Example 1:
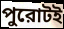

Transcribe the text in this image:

পুরোটই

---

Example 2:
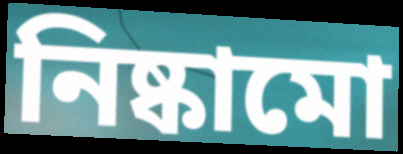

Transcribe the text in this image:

নিষ্কামো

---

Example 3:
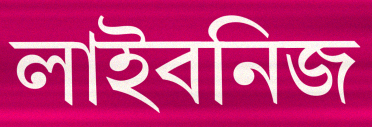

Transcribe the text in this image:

লাইবনিজ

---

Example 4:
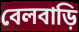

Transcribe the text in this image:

বেলবাড়ি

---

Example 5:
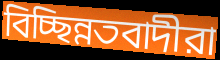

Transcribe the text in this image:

বিচ্ছিন্নতবাদীরা